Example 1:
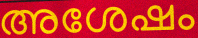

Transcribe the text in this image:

അശേഷം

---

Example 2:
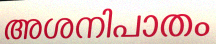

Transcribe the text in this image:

അശനിപാതം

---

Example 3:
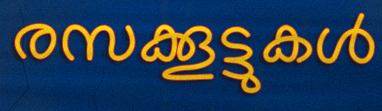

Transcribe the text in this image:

രസക്കൂട്ടുകൾ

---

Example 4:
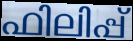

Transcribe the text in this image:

ഫിലിപ്പ്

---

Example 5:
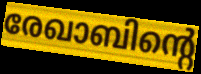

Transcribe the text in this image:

രേഖാബിന്റെ